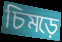
চিমড়ে